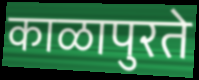
काळापुरते